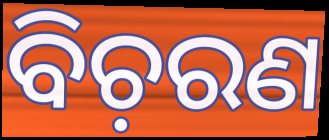
ବିଚ଼ରଣ